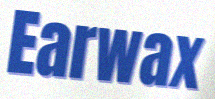
Earwax